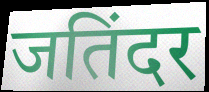
जतिंदर